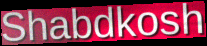
Shabdkosh